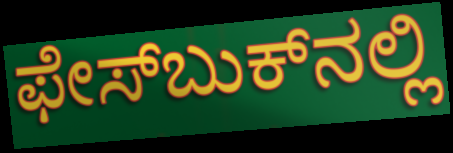
ಫೇಸ್‌ಬುಕ್‌ನಲ್ಲಿ